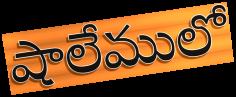
షాలేములో